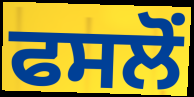
ਫਸਲੋਂ